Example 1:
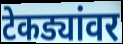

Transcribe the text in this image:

टेकड्यांवर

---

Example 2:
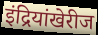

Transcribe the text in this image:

इंद्रियांखेरीज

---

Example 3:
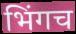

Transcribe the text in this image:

भिंगच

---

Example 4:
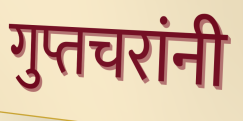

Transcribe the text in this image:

गुप्तचरांनी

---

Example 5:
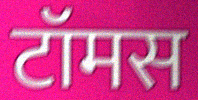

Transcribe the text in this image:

टॉमस